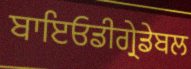
ਬਾਇਓਡੀਗ੍ਰੇਡੇਬਲ